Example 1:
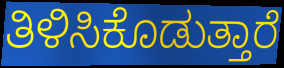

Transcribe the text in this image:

ತಿಳಿಸಿಕೊಡುತ್ತಾರೆ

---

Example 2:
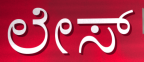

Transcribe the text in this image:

ಲೇಸ್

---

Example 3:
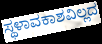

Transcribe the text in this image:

ಸ್ಥಳಾವಕಾಶವಿಲ್ಲದ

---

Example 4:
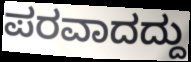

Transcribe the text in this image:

ಪರವಾದದ್ದು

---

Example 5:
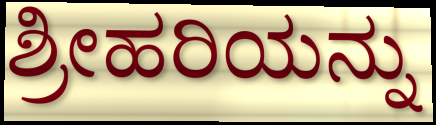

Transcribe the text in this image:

ಶ್ರೀಹರಿಯನ್ನು